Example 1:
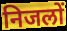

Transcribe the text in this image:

निजलों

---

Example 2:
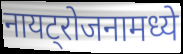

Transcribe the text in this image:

नायट्रोजनामध्ये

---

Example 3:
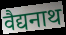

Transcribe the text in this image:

वैद्यनाथ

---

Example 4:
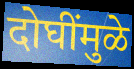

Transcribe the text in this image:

दोघींमुळे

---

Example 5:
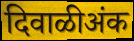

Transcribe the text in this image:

दिवाळीअंक